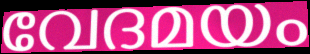
വേദമയം